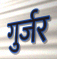
गुर्जर